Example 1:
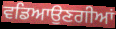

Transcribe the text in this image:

ਵਡਿਆਉਣਗੀਆਂ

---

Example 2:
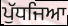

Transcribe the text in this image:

ਪੁੱਧਜਿਆ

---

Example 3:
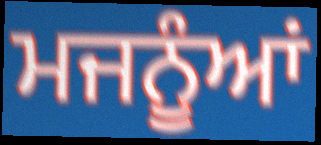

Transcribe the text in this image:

ਮਜਨੂੰਆਂ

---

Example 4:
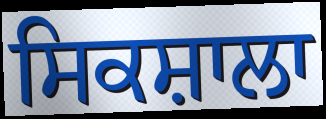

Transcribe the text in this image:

ਸਿਕਸ਼ਾਲਾ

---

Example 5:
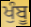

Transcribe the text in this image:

ਖੁੰਬੂ